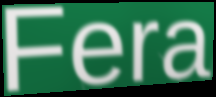
Fera